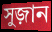
সুজ়ান